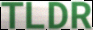
TLDR